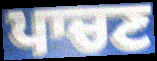
ਪਾਚਣ